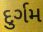
દુર્ગમ